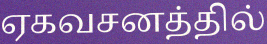
ஏகவசனத்தில்